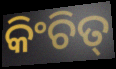
କିଂଚିତ୍